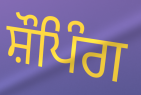
ਸ਼ੌਪਿੰਗ